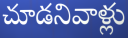
చూడనివాళ్లు